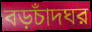
বড়চাঁদঘর